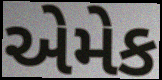
એમેક